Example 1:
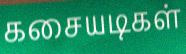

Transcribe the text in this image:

கசையடிகள்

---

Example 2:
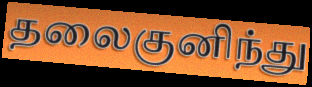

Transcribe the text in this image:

தலைகுனிந்து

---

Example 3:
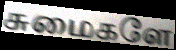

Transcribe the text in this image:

சுமைகளே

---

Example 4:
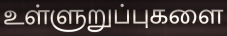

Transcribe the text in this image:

உள்ளுறுப்புகளை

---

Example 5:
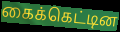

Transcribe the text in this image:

கைக்கெட்டின